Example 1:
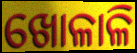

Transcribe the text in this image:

ଖୋଳାଳି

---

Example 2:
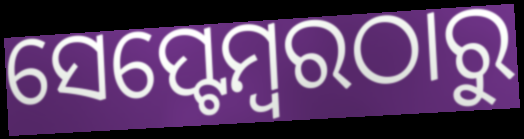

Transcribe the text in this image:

ସେପ୍ଟେମ୍ବରଠାରୁ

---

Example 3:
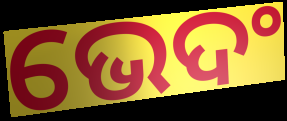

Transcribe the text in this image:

ଭେଦଂ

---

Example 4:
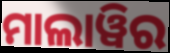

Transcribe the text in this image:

ମାଲାୱିର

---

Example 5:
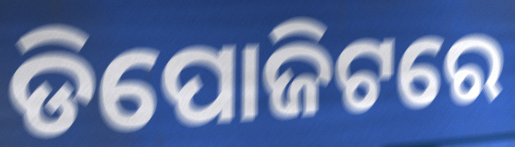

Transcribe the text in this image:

ଡିପୋଜିଟରେ